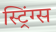
स्ट्रिंग्स